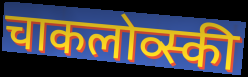
चाकलोव्स्की